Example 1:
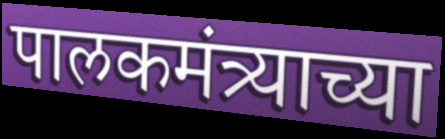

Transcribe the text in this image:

पालकमंत्र्याच्या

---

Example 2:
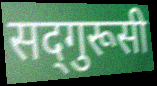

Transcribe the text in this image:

सद्‍गुरूसी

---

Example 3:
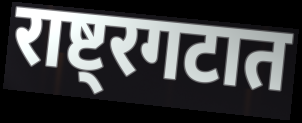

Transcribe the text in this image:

राष्ट्रगटात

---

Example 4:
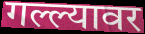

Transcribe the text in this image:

गल्ल्यावर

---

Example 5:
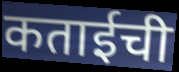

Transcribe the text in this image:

कताईची